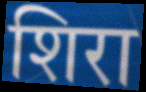
शिरा